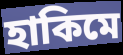
হাকিমে